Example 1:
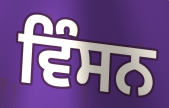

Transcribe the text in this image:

ਵਿੰਸਨ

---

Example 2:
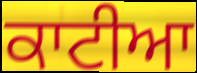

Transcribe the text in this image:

ਕਾਟੀਆ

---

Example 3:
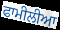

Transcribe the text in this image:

ਫਾਮੀਲੀਆ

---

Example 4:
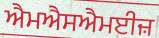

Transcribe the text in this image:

ਐਮਐਸਐਮਈਜ਼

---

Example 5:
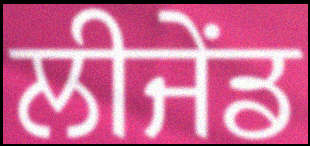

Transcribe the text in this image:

ਲੀਜੇਂਡ